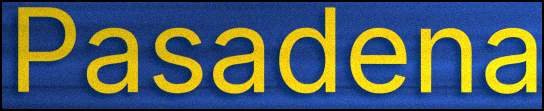
Pasadena